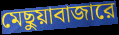
মেছুয়াবাজারে